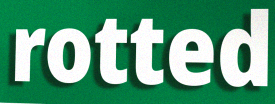
rotted